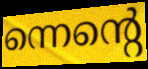
ന്നെന്റെ